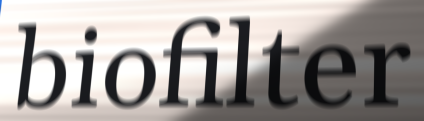
biofilter